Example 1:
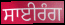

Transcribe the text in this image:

ਸਾਈਰੰਗ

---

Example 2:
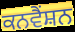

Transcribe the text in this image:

ਕਨਵੈੰਸ਼ਨ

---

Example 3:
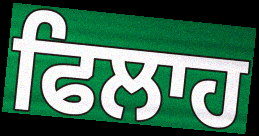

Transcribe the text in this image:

ਫਿਲਾਹ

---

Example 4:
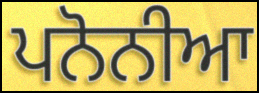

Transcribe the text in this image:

ਪਨੋਨੀਆ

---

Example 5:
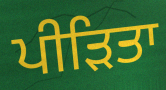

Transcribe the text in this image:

ਪੀੜਿਤਾ